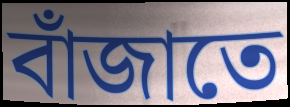
বাঁজাতে